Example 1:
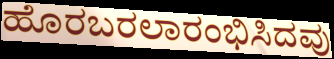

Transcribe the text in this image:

ಹೊರಬರಲಾರಂಭಿಸಿದವು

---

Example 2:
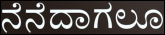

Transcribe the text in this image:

ನೆನೆದಾಗಲೂ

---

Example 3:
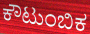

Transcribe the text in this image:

ಕೌಟುಂಬಿಕ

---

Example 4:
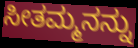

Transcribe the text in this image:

ಸೀತಮ್ಮನನ್ನು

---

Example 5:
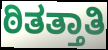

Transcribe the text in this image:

ಠಿತತ್ತಾತಿ